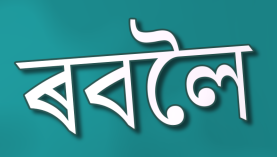
ৰবলৈ